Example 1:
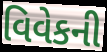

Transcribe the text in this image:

વિવેકની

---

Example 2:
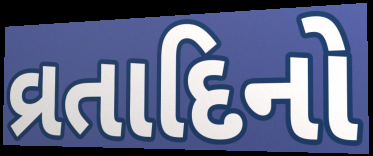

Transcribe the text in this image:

વ્રતાદિનો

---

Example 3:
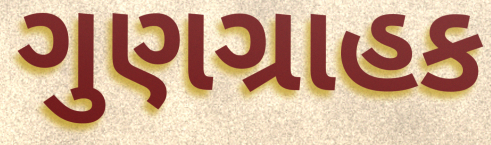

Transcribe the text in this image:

ગુણગ્રાહક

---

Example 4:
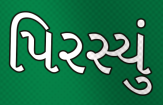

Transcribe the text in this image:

પિરસ્યું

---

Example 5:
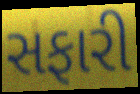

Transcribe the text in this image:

સફારી